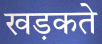
खड़कते